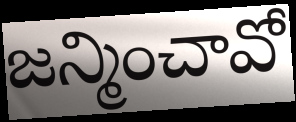
జన్మించావో